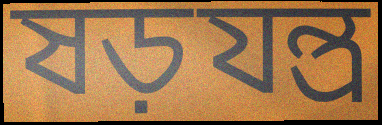
ষড়যন্ত্র